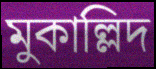
মুকাল্লিদ